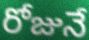
రోజునే